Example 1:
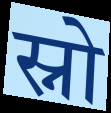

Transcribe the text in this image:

स्नो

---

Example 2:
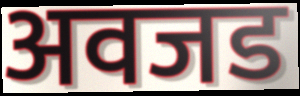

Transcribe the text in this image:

अवजड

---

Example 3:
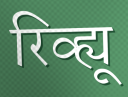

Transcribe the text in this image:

रिव्ह्यू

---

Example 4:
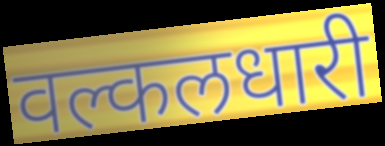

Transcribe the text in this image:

वल्कलधारी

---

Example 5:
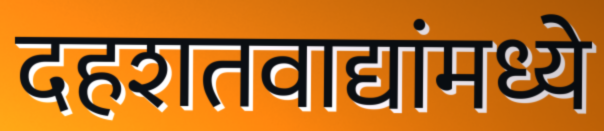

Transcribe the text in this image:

दहशतवाद्यांमध्ये